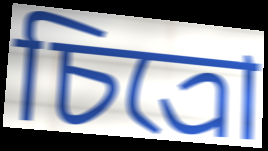
চিত্রো